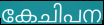
കേചിപന